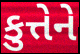
કુત્તેને